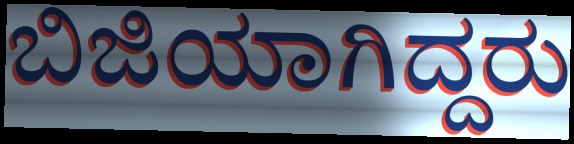
ಬಿಜಿಯಾಗಿದ್ದರು